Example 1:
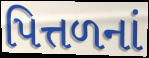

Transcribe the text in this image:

પિત્તળનાં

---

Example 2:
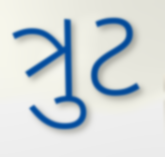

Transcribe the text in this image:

ત્રુટ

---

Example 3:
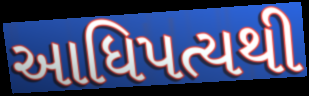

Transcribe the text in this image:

આધિપત્યથી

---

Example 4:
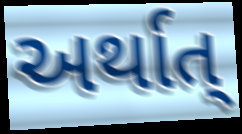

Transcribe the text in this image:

અર્થાત્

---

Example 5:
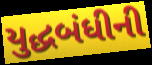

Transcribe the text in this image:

યુદ્ધબંધીની